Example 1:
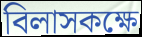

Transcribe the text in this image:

বিলাসকক্ষে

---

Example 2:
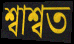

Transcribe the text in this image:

শ্বাশ্বত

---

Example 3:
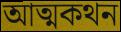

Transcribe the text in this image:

আত্মকথন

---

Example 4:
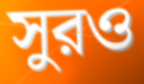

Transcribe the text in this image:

সুরও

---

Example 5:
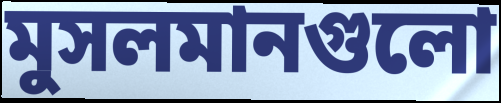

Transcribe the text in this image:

মুসলমানগুলো